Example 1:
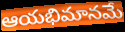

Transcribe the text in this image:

ఆయభిమానమే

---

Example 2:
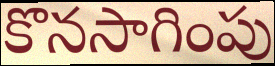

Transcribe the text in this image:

కొనసాగింపు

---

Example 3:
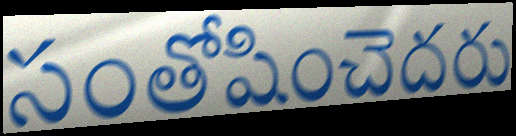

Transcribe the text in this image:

సంతోషించెదరు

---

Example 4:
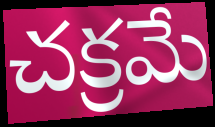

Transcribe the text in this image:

చక్రమే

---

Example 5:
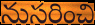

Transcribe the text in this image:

నుసరించి